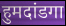
हुमदांडगा